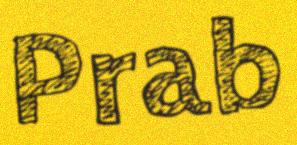
Prab